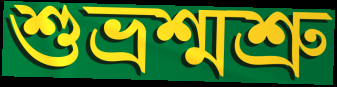
শুভ্রশ্মশ্রু